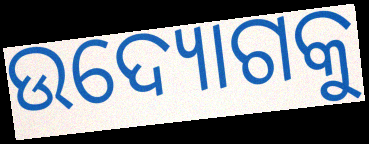
ଉଦ୍ୟୋଗକୁ